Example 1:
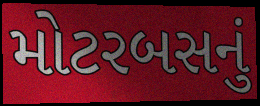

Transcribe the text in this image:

મોટરબસનું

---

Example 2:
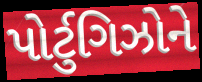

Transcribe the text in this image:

પોર્ટુગિઝોને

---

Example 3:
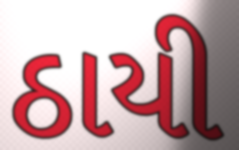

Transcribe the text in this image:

ઠાયી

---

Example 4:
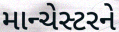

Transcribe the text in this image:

માન્ચેસ્ટરને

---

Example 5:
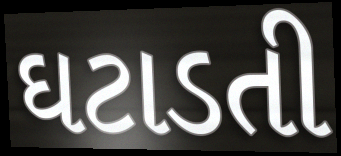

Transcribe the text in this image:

ઘટાડતી